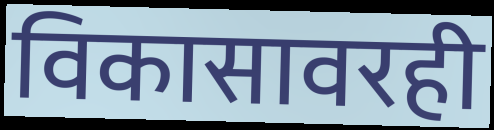
विकासावरही